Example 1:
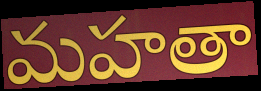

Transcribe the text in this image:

మహతా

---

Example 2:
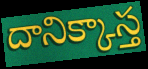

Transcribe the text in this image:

దానిక్కాస్త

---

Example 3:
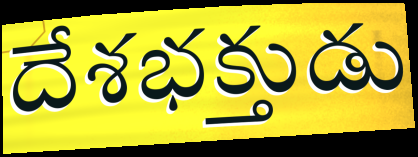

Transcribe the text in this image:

దేశభక్తుడు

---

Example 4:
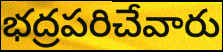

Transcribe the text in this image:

భద్రపరిచేవారు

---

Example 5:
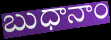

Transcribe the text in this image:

బుధానాం